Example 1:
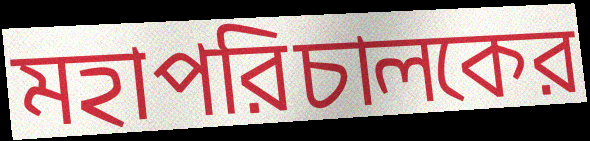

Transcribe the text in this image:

মহাপরিচালকের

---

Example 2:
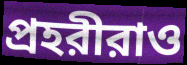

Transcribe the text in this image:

প্রহরীরাও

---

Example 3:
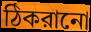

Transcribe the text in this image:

ঠিকরানো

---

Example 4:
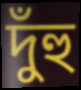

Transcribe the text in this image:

দুঁহু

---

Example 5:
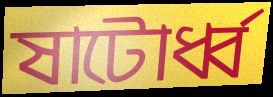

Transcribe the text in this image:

ষাটোর্ধ্ব